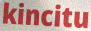
kincitu